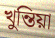
খুন্তিয়া